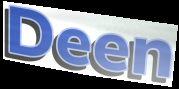
Deen